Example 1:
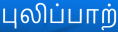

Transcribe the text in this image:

புலிப்பாற்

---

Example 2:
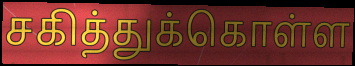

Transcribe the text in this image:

சகித்துக்கொள்ள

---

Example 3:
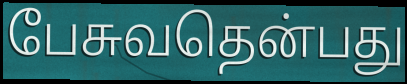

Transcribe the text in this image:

பேசுவதென்பது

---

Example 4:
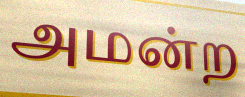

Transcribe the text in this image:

அமன்ற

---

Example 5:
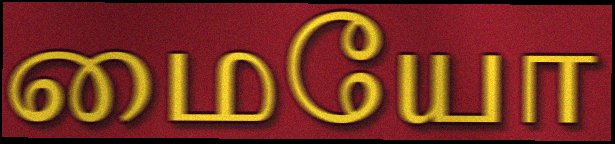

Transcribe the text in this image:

மையோ